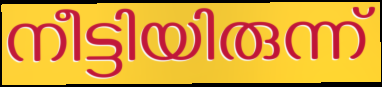
നീട്ടിയിരുന്ന്